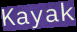
Kayak